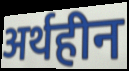
अर्थहीन